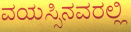
ವಯಸ್ಸಿನವರಲ್ಲಿ